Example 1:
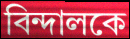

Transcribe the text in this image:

বিন্দালকে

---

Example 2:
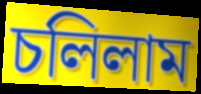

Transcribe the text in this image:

চলিলাম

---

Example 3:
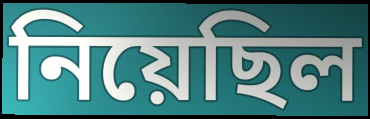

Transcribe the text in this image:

নিয়েছিল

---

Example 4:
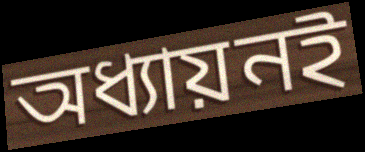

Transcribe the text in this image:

অধ্যায়নই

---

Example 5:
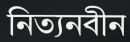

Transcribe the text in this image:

নিত্যনবীন